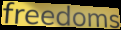
freedoms